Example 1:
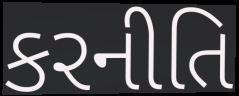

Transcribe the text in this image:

કરનીતિ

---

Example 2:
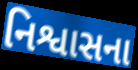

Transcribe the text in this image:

નિશ્વાસના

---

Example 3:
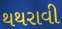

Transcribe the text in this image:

થથરાવી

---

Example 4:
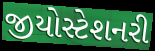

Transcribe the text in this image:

જીયોસ્ટેશનરી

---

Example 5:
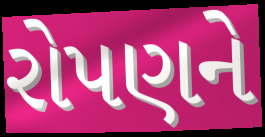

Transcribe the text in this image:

રોપણને